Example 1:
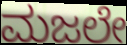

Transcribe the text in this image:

ಮಜಲೇ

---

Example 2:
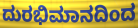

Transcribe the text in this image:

ದುರಭಿಮಾನದಿಂದ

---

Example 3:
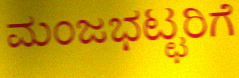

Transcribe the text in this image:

ಮಂಜಭಟ್ಟರಿಗೆ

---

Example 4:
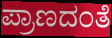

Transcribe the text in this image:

ಪ್ರಾಣದಂತೆ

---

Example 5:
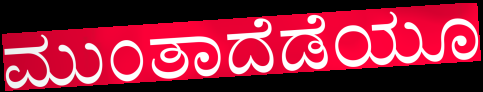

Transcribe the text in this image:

ಮುಂತಾದೆಡೆಯೂ